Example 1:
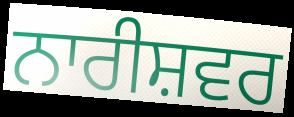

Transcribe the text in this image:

ਨਾਰੀਸ਼ਵਰ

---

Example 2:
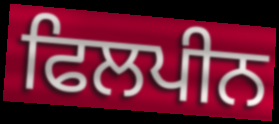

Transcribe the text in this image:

ਫਿਲਪੀਨ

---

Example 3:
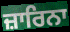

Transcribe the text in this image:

ਜ਼ਾਰਿਨਾ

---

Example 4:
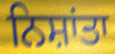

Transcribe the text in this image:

ਨਿਸ਼ਾਂਤਾ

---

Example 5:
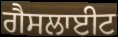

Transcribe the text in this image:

ਗੈਸਲਾਈਟ